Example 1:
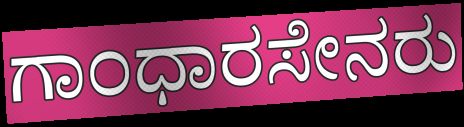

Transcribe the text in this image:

ಗಾಂಧಾರಸೇನರು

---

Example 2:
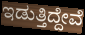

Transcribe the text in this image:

ಇಡುತ್ತಿದ್ದೇವೆ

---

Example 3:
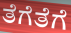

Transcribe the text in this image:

ತೆಗೆತೆಗೆ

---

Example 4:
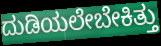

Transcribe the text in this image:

ದುಡಿಯಲೇಬೇಕಿತ್ತು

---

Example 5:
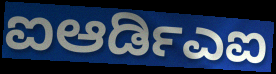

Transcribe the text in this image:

ಐಆರ್ಡಿಎಐ